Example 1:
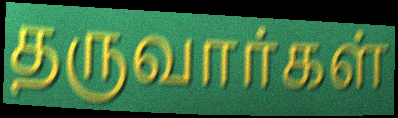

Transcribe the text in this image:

தருவார்கள்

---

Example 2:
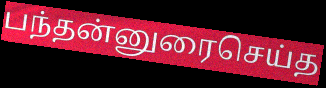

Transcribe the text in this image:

பந்தன்னுரைசெய்த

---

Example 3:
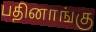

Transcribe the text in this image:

பதினாங்கு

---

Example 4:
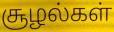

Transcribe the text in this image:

சூழல்கள்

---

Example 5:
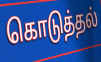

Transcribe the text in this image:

கொடுத்தல்